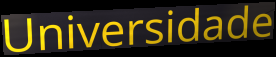
Universidade